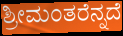
ಶ್ರೀಮಂತರೆನ್ನದೆ